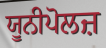
ਯੂਨੀਪੋਲਜ਼